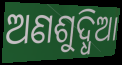
ଅଣଶୁଦ୍ଧିଆ